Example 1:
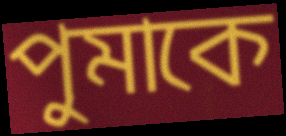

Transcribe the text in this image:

পুমাকে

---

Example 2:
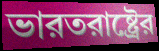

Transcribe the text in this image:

ভারতরাষ্ট্রের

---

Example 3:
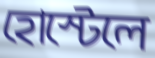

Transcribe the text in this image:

হোস্টেলে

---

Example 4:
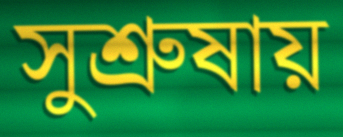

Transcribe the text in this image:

সুশ্রুষায়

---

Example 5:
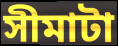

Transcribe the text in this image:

সীমাটা